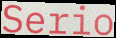
Serio